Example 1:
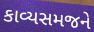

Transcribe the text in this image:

કાવ્યસમજને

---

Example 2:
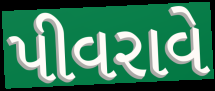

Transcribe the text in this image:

પીવરાવે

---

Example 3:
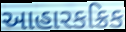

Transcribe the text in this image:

આહારકક્રિક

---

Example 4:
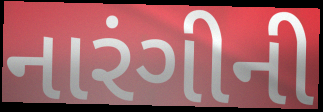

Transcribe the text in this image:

નારંગીની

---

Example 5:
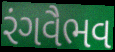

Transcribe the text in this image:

રંગવૈભવ